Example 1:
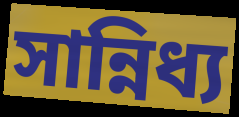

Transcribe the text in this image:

সান্নিধ্য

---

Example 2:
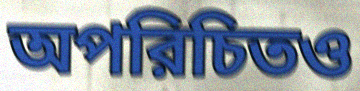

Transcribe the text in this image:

অপরিচিতও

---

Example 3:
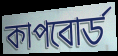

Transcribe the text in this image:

কাপবোর্ড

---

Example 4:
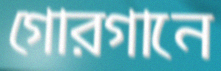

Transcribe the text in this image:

গোরগানে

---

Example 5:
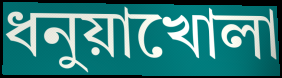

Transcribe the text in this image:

ধনুয়াখোলা